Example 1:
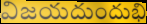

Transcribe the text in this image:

విజయదుందుభి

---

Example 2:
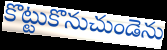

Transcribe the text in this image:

కొట్టుకొనుచుండెను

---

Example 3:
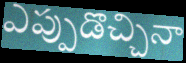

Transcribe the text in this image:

ఎప్పుడొచ్చినా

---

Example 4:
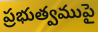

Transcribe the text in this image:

ప్రభుత్వముపై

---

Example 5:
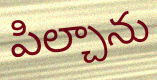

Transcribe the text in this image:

పిల్చాను